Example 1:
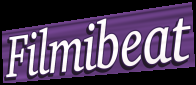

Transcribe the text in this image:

Filmibeat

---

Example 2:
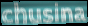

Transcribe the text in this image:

chusina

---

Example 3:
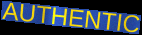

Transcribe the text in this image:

AUTHENTIC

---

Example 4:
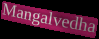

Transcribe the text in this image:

Mangalvedha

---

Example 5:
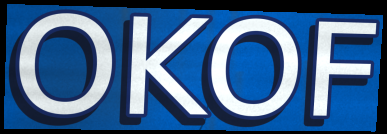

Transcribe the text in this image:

OKOF